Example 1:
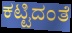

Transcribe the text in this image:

ಕಟ್ಟಿದಂತೆ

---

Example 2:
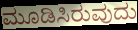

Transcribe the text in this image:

ಮೂಡಿಸಿರುವುದು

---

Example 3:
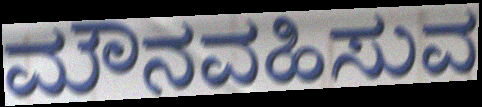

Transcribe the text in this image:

ಮೌನವಹಿಸುವ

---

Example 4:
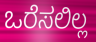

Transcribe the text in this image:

ಒರೆಸಲಿಲ್ಲ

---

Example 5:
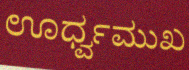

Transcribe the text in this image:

ಊರ್ಧ್ವಮುಖ